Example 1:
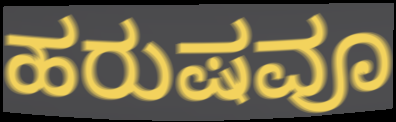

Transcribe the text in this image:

ಹರುಷವೂ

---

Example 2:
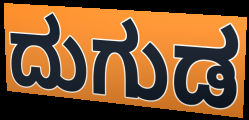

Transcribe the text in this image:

ದುಗುಡ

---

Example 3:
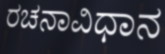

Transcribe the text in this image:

ರಚನಾವಿಧಾನ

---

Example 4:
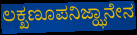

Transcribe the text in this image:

ಲಕ್ಖಣೂಪನಿಜ್ಝಾನೇನ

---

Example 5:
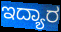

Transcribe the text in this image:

ಇದ್ಯಾರ